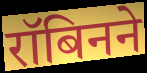
रॉबिनने